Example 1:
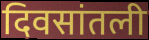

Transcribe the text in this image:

दिवसांतली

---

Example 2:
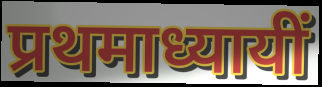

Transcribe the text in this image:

प्रथमाध्यायीं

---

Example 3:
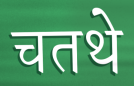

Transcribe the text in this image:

चतथे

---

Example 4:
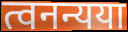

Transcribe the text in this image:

त्वनन्यया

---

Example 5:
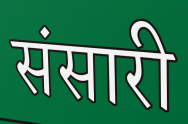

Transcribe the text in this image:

संसारी